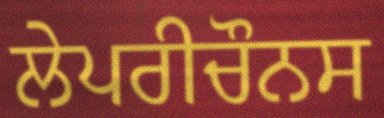
ਲੇਪਰੀਚੌਨਸ